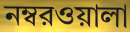
নম্বরওয়ালা